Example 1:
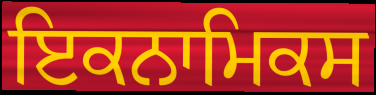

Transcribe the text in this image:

ਇਕਨਾਮਿਕਸ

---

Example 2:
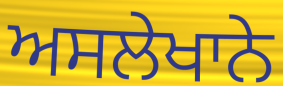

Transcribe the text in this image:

ਅਸਲੇਖਾਨੇ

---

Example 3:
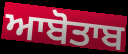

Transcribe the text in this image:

ਆਬੋਤਾਬ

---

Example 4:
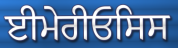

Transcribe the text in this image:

ਈਮੇਰੀਓਸਿਸ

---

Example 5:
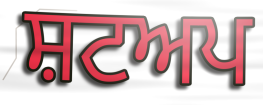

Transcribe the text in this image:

ਸ਼ਟਅਪ